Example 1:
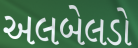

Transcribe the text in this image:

અલબેલડો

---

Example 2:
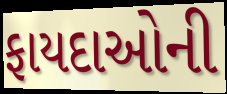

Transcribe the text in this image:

ફાયદાઓની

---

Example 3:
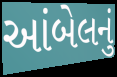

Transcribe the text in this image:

આંબેલનું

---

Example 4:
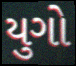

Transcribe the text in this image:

યુગો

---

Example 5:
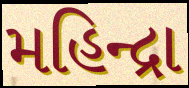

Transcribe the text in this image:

મહિન્દ્રા